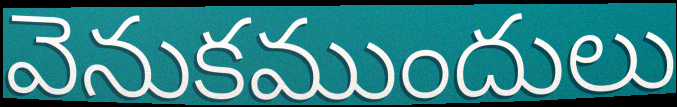
వెనుకముందులు